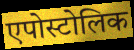
एपोस्टोलिक